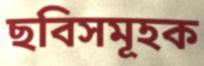
ছবিসমূহক